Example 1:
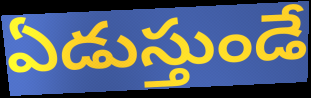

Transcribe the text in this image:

ఏడుస్తుండే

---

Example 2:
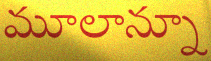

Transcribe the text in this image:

మూలాన్నూ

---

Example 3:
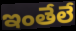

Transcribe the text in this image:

ఇంతేలే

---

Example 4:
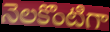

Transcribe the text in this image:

నెలకొంటిగా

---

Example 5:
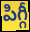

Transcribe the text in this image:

పిగ్గీ